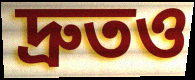
দ্রুতও